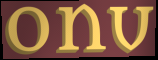
onu